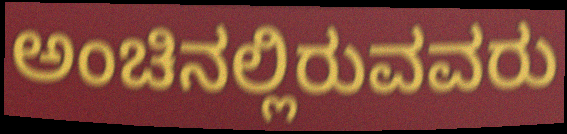
ಅಂಚಿನಲ್ಲಿರುವವರು